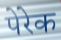
पेरेक